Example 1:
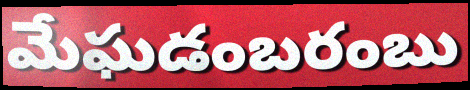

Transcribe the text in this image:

మేఘడంబరంబు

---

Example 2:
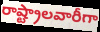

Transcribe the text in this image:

రాష్ట్రాలవారీగా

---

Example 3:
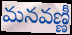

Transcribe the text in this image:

మనవణ్ణీ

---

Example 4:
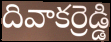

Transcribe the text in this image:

దివాకర్రెడ్డి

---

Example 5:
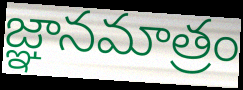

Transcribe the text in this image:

జ్ఞానమాత్రం